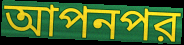
আপনপর